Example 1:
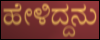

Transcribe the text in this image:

ಹೇಳಿದ್ದನು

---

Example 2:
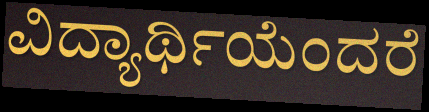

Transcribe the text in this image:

ವಿದ್ಯಾರ್ಥಿಯೆಂದರೆ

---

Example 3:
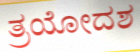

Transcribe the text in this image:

ತ್ರಯೋದಶ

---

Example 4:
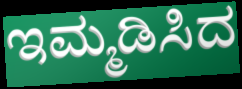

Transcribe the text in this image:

ಇಮ್ಮಡಿಸಿದ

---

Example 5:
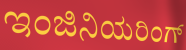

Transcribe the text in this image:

ಇಂಜಿನಿಯರಿಂಗ್